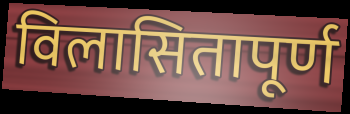
विलासितापूर्ण